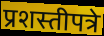
प्रशस्तीपत्रे